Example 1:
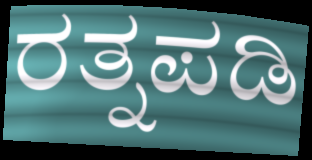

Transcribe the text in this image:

ರತ್ನಪಡಿ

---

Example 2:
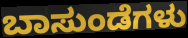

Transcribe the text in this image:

ಬಾಸುಂಡೆಗಳು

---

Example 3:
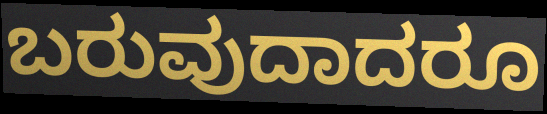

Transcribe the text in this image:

ಬರುವುದಾದರೂ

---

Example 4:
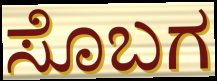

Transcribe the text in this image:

ಸೊಬಗ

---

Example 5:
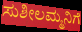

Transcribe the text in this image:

ಸುಶೀಲಮ್ಮನಿಗೆ